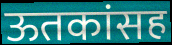
ऊतकांसह